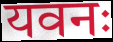
यवनः